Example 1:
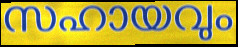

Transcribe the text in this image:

സഹായവും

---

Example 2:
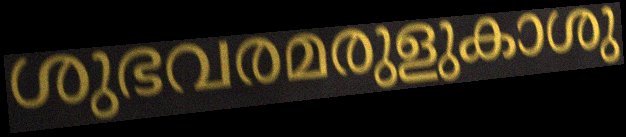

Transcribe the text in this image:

ശുഭവരമരുളുകാശു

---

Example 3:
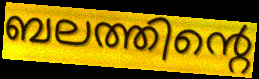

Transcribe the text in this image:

ബലത്തിന്റെ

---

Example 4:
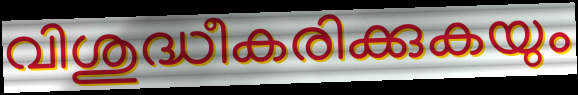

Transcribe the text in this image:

വിശുദ്ധീകരിക്കുകയും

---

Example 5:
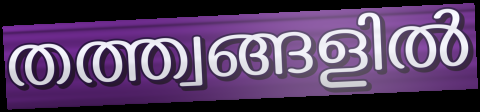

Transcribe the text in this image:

തത്ത്വങ്ങളിൽ